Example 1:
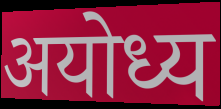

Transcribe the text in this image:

अयोध्य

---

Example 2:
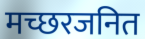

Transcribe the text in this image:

मच्छरजनित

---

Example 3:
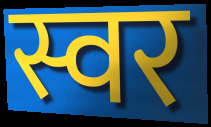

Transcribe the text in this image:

स्‍वर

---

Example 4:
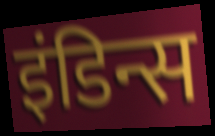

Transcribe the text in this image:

इंडिन्स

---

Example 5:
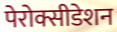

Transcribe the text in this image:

पेरोक्सीडेशन